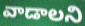
వాడాలని